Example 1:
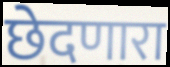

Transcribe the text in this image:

छेदणारा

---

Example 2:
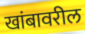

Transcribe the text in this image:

खांबावरील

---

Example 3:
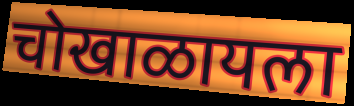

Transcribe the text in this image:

चोखाळायला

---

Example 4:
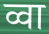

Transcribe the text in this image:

व्वा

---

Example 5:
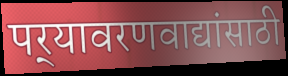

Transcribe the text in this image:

पर्यावरणवाद्यांसाठी